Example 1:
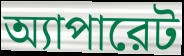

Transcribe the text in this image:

অ্যাপারেট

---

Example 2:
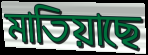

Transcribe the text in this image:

মাতিয়াছে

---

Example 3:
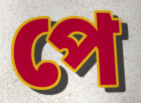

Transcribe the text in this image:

পে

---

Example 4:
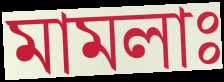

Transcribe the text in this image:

মামলাঃ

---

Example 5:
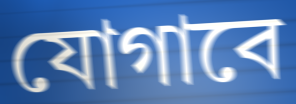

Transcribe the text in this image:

যোগাবে